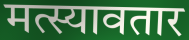
मत्स्यावतार